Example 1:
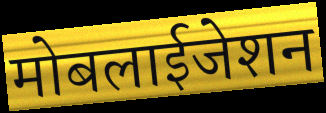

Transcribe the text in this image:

मोबलाईजेशन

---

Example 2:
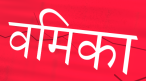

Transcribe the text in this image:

वमिका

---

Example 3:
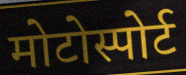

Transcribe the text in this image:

मोटोस्पोर्ट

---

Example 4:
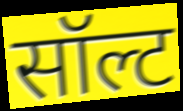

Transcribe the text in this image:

सॉल्ट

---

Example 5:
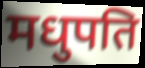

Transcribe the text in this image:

मधुपति